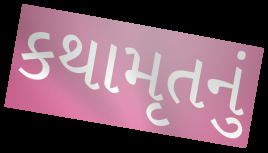
કથામૃતનું